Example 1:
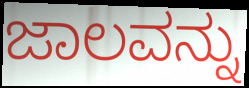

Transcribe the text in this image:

ಜಾಲವನ್ನು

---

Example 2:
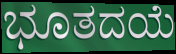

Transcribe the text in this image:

ಭೂತದಯೆ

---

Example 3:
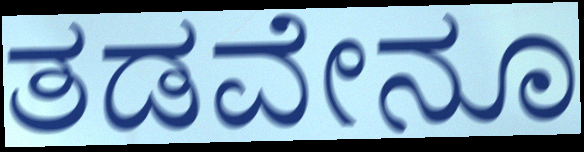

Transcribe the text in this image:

ತಡವೇನೂ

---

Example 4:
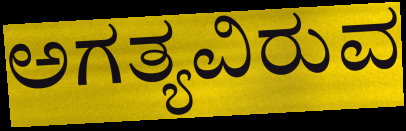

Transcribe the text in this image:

ಅಗತ್ಯವಿರುವ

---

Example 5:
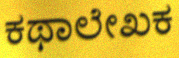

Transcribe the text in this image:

ಕಥಾಲೇಖಕ